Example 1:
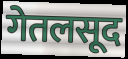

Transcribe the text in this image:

गेतलसूद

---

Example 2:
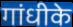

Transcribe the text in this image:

गांधीके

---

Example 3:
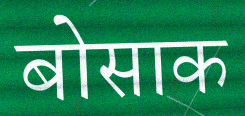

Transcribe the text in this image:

बोसाक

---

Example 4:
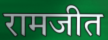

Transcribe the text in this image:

रामजीत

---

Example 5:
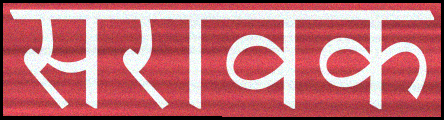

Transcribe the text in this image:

सरावक